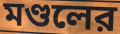
মণ্ডলের